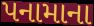
પનામાના